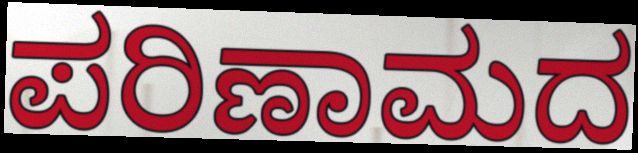
ಪರಿಣಾಮದ